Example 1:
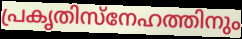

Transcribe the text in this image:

പ്രകൃതിസ്നേഹത്തിനും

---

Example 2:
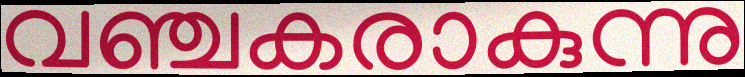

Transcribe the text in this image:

വഞ്ചകരാകുന്നു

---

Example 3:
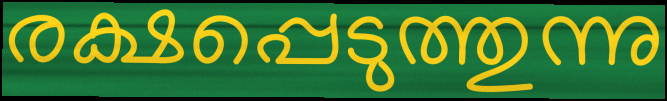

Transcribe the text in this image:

രക്ഷപ്പെടുത്തുന്നു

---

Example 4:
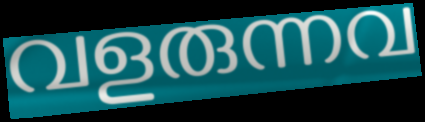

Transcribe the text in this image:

വളരുന്നവ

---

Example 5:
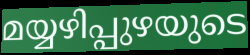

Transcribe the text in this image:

മയ്യഴിപ്പുഴയുടെ